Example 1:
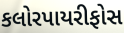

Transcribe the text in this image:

કલોરપાયરીફોસ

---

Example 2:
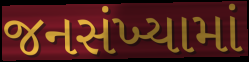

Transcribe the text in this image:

જનસંખ્યામાં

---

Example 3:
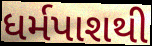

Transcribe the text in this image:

ધર્મપાશથી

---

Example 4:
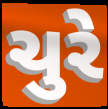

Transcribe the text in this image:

ચુરે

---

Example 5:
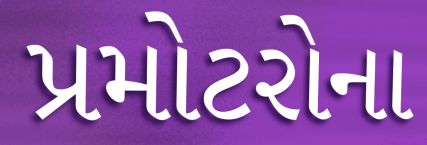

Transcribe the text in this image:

પ્રમોટરોના